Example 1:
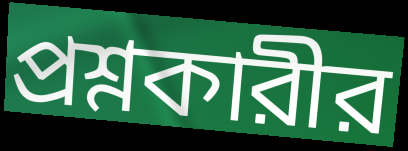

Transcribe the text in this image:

প্রশ্নকারীর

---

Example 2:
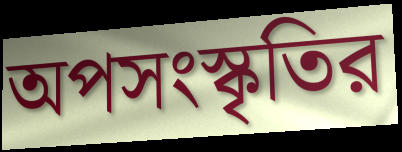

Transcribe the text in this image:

অপসংস্কৃতির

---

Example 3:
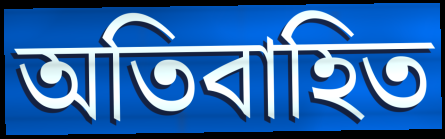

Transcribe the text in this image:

অতিবাহিত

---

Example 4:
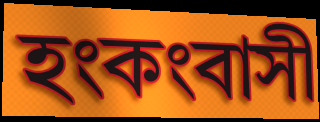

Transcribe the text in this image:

হংকংবাসী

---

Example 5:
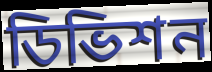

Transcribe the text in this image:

ডিভিশন